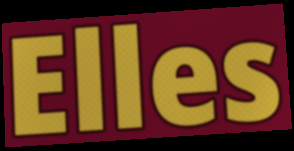
Elles